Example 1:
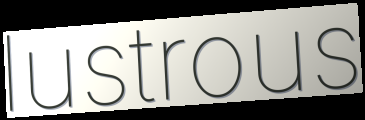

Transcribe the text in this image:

lustrous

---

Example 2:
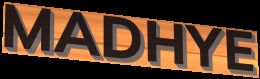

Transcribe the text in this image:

MADHYE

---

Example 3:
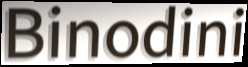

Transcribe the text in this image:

Binodini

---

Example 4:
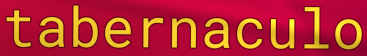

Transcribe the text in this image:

tabernaculo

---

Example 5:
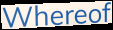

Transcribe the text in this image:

Whereof